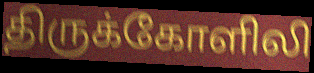
திருக்கோளிலி